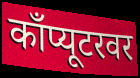
काँप्यूटरवर